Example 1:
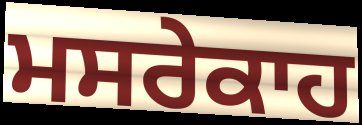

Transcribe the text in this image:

ਮਸਰੇਕਾਹ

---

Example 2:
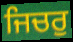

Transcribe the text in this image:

ਜਿਚਰੁ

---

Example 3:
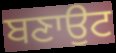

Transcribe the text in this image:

ਬਣਾਉਟ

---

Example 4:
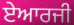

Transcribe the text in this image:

ਏਆਰਜੀ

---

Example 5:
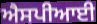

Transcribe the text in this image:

ਐਸਪੀਆਈ